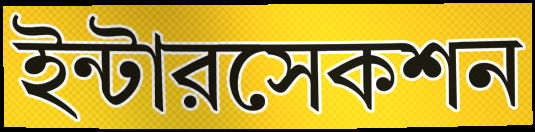
ইন্টারসেকশন